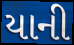
યાની